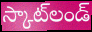
స్కాట్‌లండ్